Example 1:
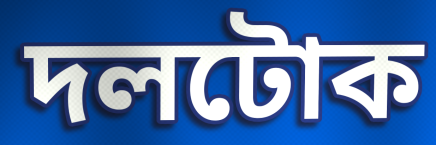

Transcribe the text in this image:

দলটোক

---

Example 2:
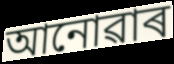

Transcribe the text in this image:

আনোৱাৰ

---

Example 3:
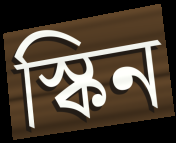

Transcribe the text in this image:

স্কিন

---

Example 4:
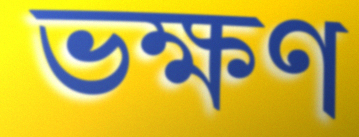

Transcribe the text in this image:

ভক্ষণ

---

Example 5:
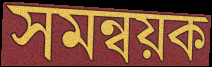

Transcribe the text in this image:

সমন্বয়ক